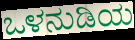
ಒಳನುಡಿಯ